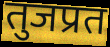
तुजप्रत